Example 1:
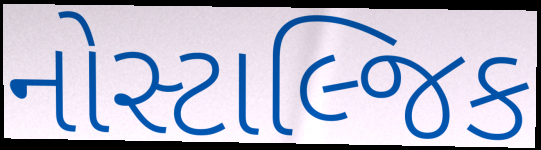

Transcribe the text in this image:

નોસ્ટાલ્જિક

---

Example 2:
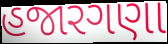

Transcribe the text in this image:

હજારગણા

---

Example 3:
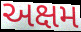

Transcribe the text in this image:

અક્ષમ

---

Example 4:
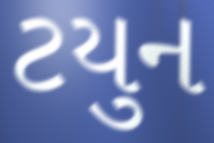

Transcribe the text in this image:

ટયુન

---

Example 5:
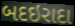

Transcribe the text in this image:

બદઇરાદા